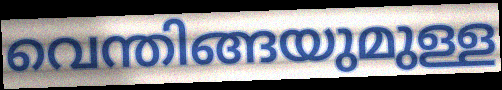
വെന്തിങ്ങയുമുള്ള